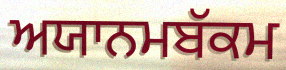
ਅਯਾਨਮਬੱਕਮ